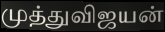
முத்துவிஜயன்